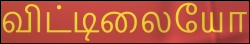
விட்டிலையோ